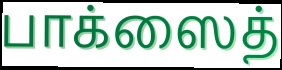
பாக்ஸைத்